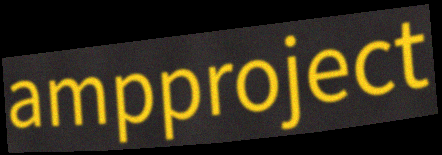
ampproject